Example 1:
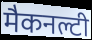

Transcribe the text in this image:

मैकनल्टी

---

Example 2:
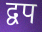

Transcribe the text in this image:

द्वप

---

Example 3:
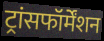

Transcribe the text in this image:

ट्रांसफॉर्मेंशन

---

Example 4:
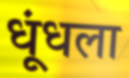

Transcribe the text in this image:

धूंधला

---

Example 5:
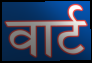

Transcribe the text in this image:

वार्ट